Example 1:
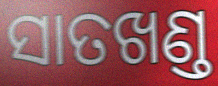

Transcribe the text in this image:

ସାତଖଣ୍ଡ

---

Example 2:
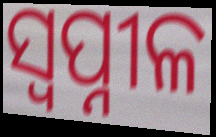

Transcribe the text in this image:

ସ୍ୱପ୍ନୀଳ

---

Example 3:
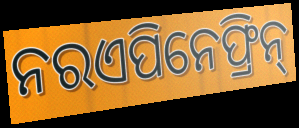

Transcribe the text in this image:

ନରଏପିନେଫ୍ରିନ୍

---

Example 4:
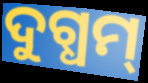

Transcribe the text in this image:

ଦୁଗ୍ଧମ୍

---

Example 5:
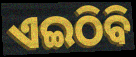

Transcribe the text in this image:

ଏଇଠିବି